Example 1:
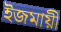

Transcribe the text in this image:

ইজমায়ী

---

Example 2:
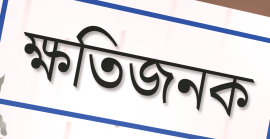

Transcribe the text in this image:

ক্ষতিজনক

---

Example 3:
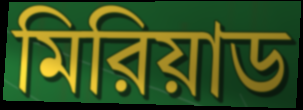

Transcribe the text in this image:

মিরিয়াড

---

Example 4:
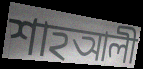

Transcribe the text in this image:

শাহআলী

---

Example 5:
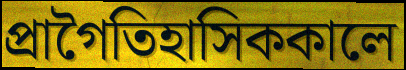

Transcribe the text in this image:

প্রাগৈতিহাসিককালে